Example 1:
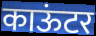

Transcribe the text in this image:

काऊंटर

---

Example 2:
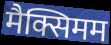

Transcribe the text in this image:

मैक्सिमम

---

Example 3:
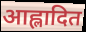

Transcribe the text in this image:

आह्लादित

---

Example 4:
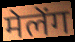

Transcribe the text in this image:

मेलेंग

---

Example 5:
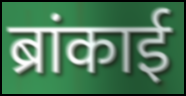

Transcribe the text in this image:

ब्रांकाई